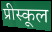
प्रीस्कूल